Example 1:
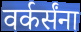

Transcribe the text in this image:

वर्कर्संना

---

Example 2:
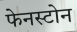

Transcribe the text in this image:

फेनस्टोन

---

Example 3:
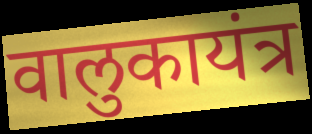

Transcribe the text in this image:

वालुकायंत्र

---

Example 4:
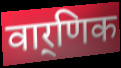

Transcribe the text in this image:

वार्णिक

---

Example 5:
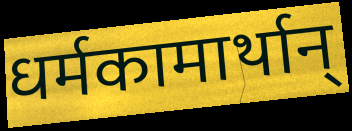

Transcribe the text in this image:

धर्मकामार्थान्